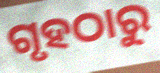
ଗୃହଠାରୁ